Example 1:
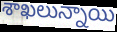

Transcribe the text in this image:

శాఖలున్నాయి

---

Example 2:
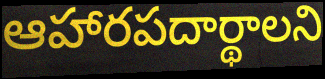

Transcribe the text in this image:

ఆహారపదార్థాలని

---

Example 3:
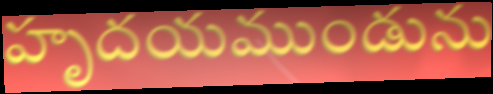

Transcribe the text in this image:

హృదయముండును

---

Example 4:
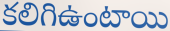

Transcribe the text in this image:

కలిగిఉంటాయి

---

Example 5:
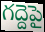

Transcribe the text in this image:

గద్దెపై